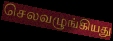
செலவழுங்கியது